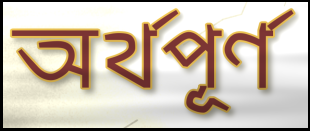
অর্থপূর্ণ